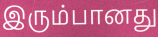
இரும்பானது